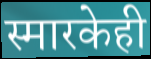
स्मारकेही